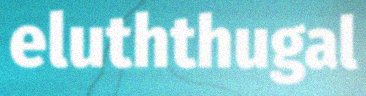
eluththugal